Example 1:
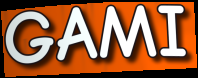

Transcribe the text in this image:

GAMI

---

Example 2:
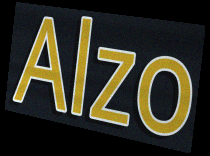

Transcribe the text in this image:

Alzo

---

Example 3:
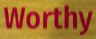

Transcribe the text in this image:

Worthy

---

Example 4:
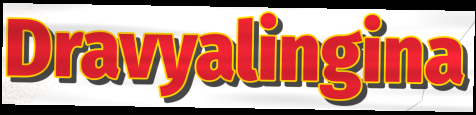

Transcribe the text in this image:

Dravyalingina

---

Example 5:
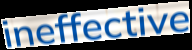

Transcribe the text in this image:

ineffective